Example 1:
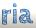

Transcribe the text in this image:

ria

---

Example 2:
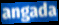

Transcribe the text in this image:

angada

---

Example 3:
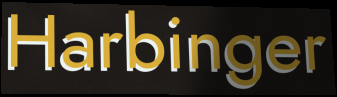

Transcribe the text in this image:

Harbinger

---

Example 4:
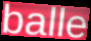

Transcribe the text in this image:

balle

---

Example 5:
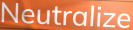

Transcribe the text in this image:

Neutralize